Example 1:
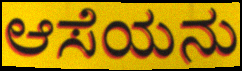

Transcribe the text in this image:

ಆಸೆಯನು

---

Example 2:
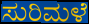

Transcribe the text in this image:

ಸುರಿಮಳೆ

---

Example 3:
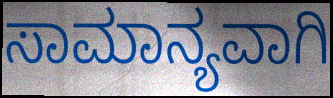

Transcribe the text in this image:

ಸಾಮಾನ್ಯವಾಗಿ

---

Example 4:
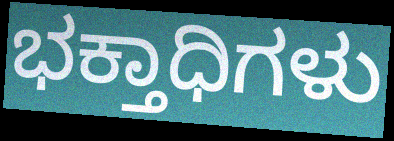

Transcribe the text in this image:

ಭಕ್ತಾಧಿಗಳು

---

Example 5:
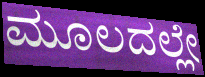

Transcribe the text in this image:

ಮೂಲದಲ್ಲೇ